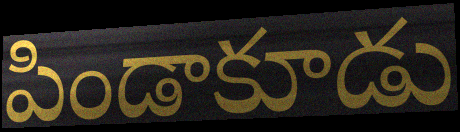
పిండాకూడు